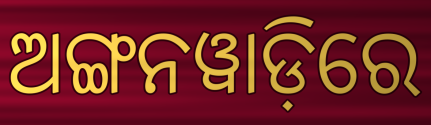
ଅଙ୍ଗନୱାଡ଼ିରେ